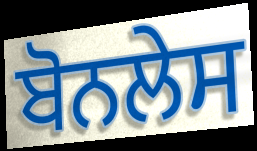
ਬੋਨਲੇਸ